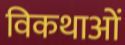
विकथाओं